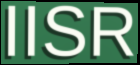
IISR